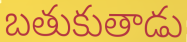
బతుకుతాడు